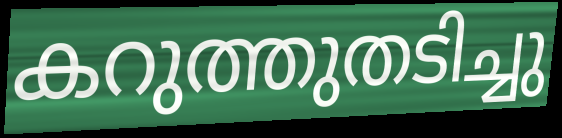
കറുത്തുതടിച്ചു